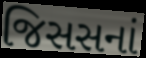
જિસસનાં